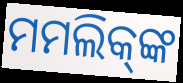
ମମଲିକ୍‌ଙ୍କ